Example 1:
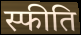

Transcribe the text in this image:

स्‍फीति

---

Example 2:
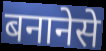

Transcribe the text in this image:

बनानेसे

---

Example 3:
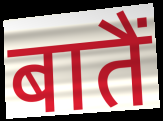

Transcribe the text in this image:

बातैं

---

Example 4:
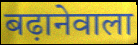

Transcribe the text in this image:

बढ़ानेवाला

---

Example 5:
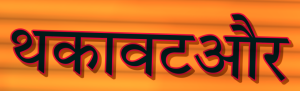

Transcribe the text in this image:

थकावटऔर